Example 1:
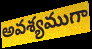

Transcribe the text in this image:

అవశ్యముగా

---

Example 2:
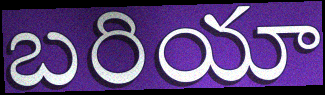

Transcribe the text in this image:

బరియా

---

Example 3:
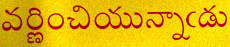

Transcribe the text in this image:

వర్ణించియున్నాఁడు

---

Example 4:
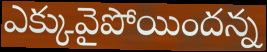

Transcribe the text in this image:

ఎక్కువైపోయిందన్న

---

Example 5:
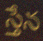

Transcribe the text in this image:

స్తేన